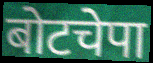
बोटचेपा